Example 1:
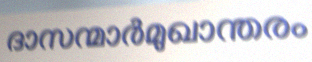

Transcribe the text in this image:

ദാസന്മാർമുഖാന്തരം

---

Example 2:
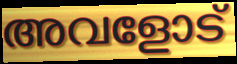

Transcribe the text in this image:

അവളോട്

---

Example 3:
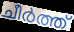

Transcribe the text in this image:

ചീർത്ത്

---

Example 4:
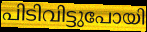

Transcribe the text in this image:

പിടിവിട്ടുപോയി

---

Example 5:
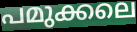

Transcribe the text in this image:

പമുക്കലെ